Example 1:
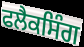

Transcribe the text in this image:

ਫਲੈਕਸਿੰਗ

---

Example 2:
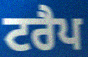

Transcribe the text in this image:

ਟਰੈਪ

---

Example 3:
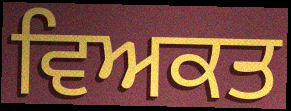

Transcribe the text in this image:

ਵਿਅਕਤ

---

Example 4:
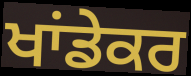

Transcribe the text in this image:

ਖਾਂਡੇਕਰ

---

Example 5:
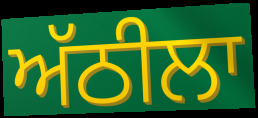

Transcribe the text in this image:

ਅੱਠੀਲਾ